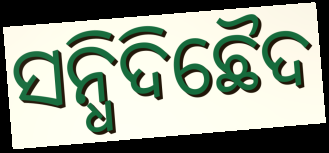
ସନ୍ଧିଦିଛୈଦ